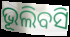
ଭୂଲିବସି